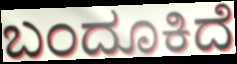
ಬಂದೂಕಿದೆ